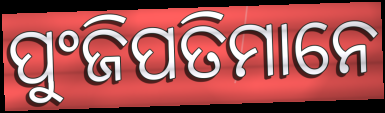
ପୁଂଜିପତିମାନେ